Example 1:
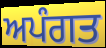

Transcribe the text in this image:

ਅਪੰਗਤ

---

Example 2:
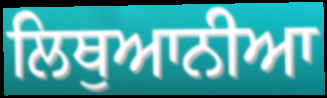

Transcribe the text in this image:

ਲਿਥੁਆਨੀਆ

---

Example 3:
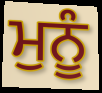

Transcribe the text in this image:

ਮੁਨੂੰ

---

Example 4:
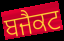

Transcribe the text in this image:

ਬਜੈਕਟ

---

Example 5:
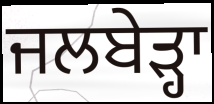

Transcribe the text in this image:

ਜਲਬੇੜ੍ਹਾ